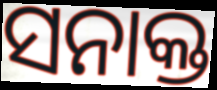
ସନାକ୍ତ